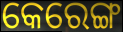
କେରେଙ୍ଗ